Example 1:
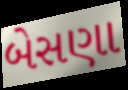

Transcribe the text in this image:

બેસણા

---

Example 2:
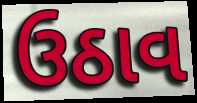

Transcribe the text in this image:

ઉઠાવ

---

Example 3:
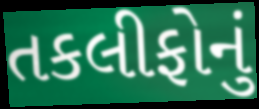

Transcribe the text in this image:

તકલીફોનું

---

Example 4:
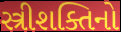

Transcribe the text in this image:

સ્ત્રીશક્તિનો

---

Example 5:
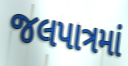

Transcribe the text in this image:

જલપાત્રમાં